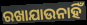
ରଖାଯାଉନାହିଁ